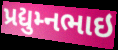
પ્રદ્યુમ્નભાઇ